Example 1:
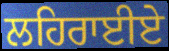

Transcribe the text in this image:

ਲਹਿਰਾਈਏ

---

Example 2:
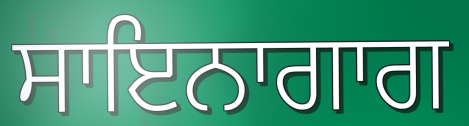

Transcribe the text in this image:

ਸਾਇਨਾਗਾਗ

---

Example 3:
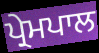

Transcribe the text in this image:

ਪ੍ਰੇਮਪਾਲ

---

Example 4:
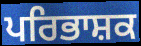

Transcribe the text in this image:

ਪਰਿਭਾਸ਼ਕ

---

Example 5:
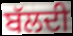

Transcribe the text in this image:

ਬੱਲਦੀ